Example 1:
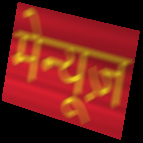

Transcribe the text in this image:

मेन्यूज़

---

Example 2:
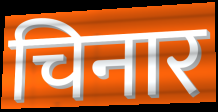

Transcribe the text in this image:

चिनार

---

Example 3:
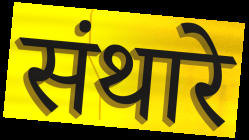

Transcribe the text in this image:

संथारे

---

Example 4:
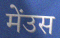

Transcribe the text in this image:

मेंउस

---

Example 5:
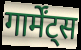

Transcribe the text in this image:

गार्मेंट्स